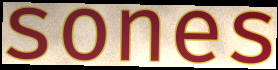
sones